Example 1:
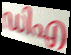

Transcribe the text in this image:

ഡിഎ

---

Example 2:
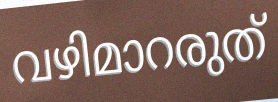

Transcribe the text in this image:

വഴിമാറരുത്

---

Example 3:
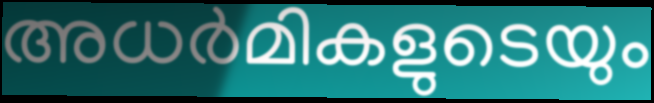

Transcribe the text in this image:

അധർമികളുടെയും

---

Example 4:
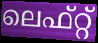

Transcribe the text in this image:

ലെഫ്റ്റ്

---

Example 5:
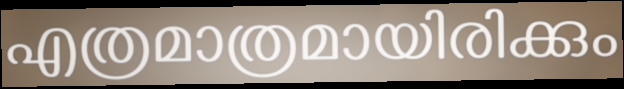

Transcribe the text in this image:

എത്രമാത്രമായിരിക്കും